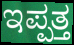
ಇಪ್ಪತ್ತ